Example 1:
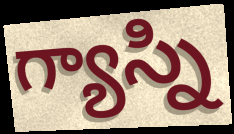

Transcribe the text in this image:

గ్యాస్ని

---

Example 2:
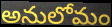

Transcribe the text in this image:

అనులోమం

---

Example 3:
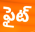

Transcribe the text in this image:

ఫైట్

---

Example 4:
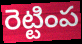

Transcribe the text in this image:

రెట్టింప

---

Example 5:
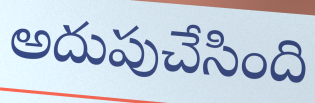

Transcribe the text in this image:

అదుపుచేసింది